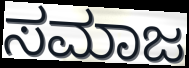
ಸಮಾಜ